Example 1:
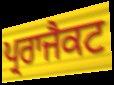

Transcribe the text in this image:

ਪ੍ਰਰਾਜੈਕਟ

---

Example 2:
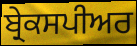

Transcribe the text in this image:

ਬ੍ਰੇਕਸਪੀਅਰ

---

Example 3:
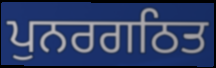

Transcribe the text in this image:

ਪੁਨਰਗਠਿਤ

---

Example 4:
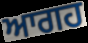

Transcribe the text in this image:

ਆਗਹ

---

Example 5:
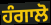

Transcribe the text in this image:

ਹੰਗਾਲੋ